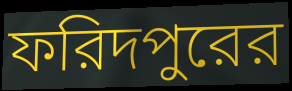
ফরিদপুরের